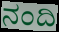
ನಂದಿ